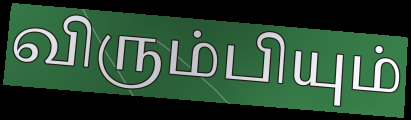
விரும்பியும்